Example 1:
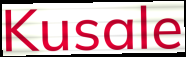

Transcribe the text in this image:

Kusale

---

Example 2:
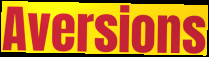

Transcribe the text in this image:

Aversions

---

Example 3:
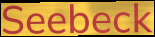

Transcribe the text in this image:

Seebeck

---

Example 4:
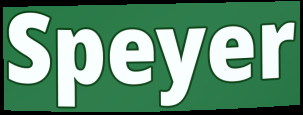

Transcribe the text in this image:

Speyer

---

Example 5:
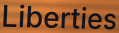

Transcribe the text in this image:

Liberties